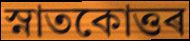
স্নাতকোত্তৰ